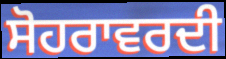
ਸੋਹਰਾਵਰਦੀ